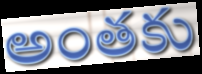
అంతకు